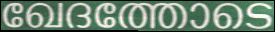
ഖേദത്തോടെ